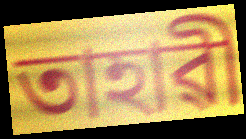
তাহাৱী